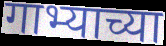
गाभ्याच्या